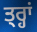
ਤ੍ਰ੍ਹਾਂ